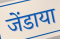
जेंडाया